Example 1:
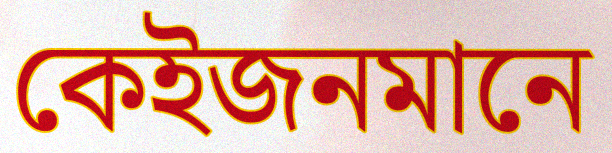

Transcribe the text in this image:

কেইজনমানে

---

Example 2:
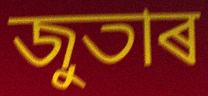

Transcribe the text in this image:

জুতাৰ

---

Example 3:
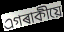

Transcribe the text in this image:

এগৰাকীয়ে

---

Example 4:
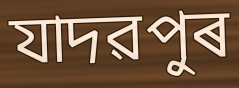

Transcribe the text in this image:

যাদৱপুৰ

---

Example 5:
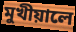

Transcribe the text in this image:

মুখীয়ালে